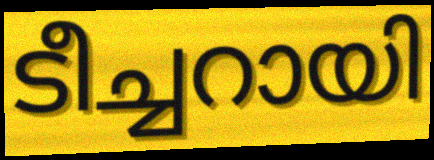
ടീച്ചറായി